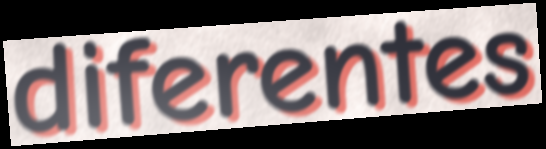
diferentes